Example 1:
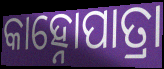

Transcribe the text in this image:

କାହ୍ନୋପାତ୍ରା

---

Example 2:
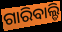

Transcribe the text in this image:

ଗାରିବାଲ୍ଡି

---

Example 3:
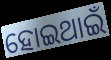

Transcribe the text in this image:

ହୋଇଥାଇଁ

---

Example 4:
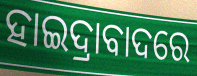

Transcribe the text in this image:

ହାଇଦ୍ରାବାଦରେ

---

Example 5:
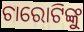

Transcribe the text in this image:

ଚାରୋଟିଙ୍କୁ